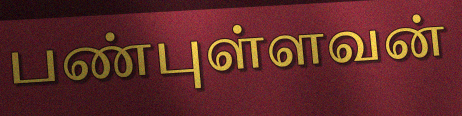
பண்புள்ளவன்